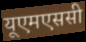
यूएमएससी